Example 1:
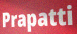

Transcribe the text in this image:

Prapatti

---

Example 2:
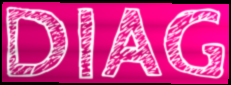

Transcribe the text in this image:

DIAG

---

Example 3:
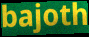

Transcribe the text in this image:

bajoth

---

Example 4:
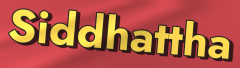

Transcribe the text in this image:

Siddhattha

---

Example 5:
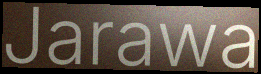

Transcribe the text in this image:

Jarawa